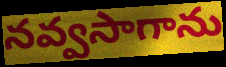
నవ్వసాగాను